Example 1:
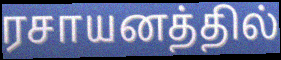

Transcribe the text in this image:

ரசாயனத்தில்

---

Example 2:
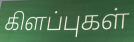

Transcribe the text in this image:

கிளப்புகள்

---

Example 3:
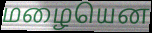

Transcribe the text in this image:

மழையென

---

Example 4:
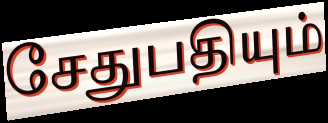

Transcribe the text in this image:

சேதுபதியும்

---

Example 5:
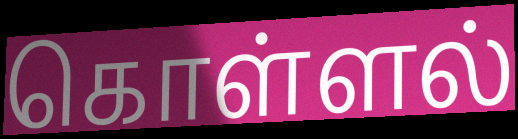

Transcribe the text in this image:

கொள்ளல்